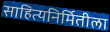
साहित्यनिर्मितीला